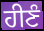
ਹੀਣੰ